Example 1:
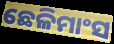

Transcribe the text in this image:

ଛେଳିମାଂସ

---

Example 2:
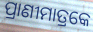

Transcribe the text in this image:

ପ୍ରାଣୀମାତ୍ରକେ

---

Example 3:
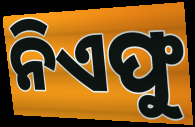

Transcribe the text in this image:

ନିଏଫୁ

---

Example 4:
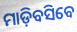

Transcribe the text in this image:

ମାଡ଼ିବସିବେ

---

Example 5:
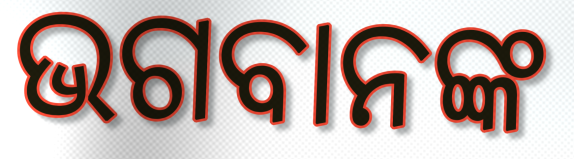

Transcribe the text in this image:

ଭଗବାନଙ୍କ